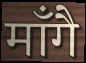
माँगै